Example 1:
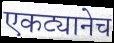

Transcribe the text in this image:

एकट्यानेच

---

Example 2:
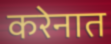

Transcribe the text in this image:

करेनात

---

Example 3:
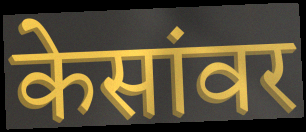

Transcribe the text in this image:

केसांवर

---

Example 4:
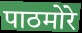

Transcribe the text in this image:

पाठमोरे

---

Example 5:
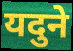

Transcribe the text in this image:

यदुने